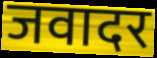
जवादर